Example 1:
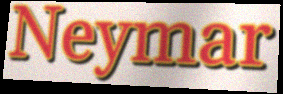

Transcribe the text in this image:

Neymar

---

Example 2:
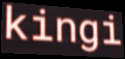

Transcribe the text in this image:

kingi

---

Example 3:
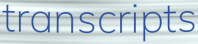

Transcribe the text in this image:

transcripts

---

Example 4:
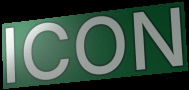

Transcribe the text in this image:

ICON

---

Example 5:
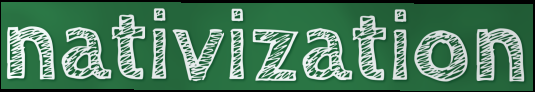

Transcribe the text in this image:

nativization